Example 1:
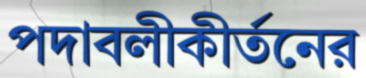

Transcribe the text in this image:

পদাবলীকীর্তনের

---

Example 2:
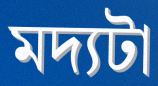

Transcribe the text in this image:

মদ্যটা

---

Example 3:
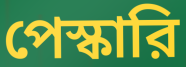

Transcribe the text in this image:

পেস্কারি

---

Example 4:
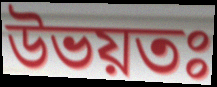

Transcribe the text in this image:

উভয়তঃ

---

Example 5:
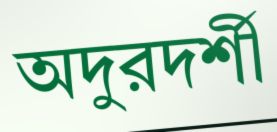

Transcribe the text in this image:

অদুরদর্শী